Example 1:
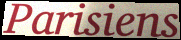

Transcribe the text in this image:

Parisiens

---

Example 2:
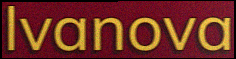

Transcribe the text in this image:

Ivanova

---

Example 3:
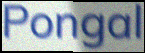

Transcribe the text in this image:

Pongal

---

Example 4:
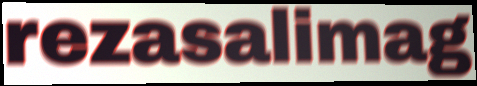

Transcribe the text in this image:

rezasalimag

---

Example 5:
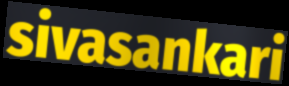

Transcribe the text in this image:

sivasankari